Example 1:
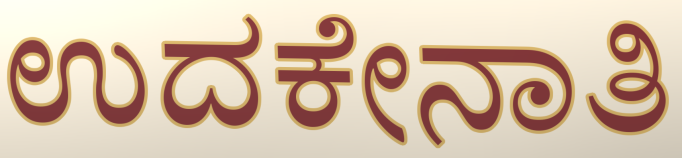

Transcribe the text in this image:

ಉದಕೇನಾತಿ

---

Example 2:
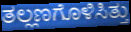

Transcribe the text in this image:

ತಲ್ಲಣಗೊಳಿಸಿತ್ತು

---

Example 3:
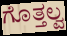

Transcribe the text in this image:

ಗೊತ್ತಲ್ವ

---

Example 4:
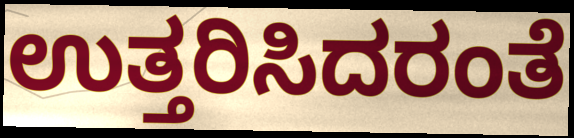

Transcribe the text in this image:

ಉತ್ತರಿಸಿದರಂತೆ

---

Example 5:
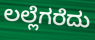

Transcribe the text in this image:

ಲಲ್ಲೆಗರೆದು